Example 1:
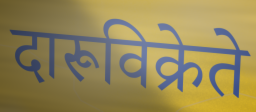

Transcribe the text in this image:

दारूविक्रेते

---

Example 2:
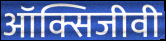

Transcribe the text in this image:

ऑक्सिजीवी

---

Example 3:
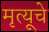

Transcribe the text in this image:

मृत्यूचे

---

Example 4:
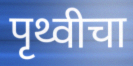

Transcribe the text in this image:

पृथ्वीचा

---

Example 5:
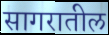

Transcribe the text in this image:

सागरातील